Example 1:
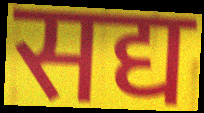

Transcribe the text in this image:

सद्य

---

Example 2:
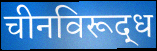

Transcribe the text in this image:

चीनविरूद्ध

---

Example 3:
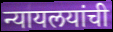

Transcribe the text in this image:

न्यायलयांची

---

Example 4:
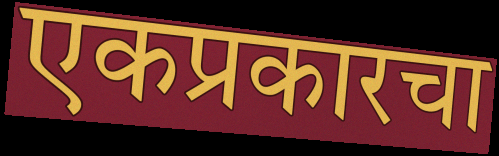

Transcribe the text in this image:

एकप्रकारचा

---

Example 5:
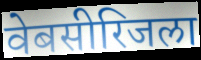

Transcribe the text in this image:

वेबसीरिजला